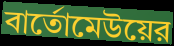
বার্তোমেউয়ের